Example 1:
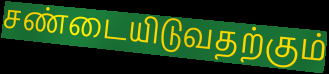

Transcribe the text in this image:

சண்டையிடுவதற்கும்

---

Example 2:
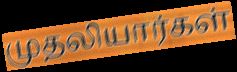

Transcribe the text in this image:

முதலியார்கள்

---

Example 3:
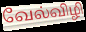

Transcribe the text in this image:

வேல்விழி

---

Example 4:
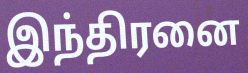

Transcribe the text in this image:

இந்திரனை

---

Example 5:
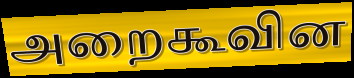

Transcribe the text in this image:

அறைகூவின